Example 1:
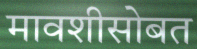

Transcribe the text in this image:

मावशीसोबत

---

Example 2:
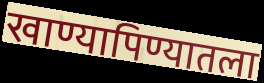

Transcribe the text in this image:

खाण्यापिण्यातला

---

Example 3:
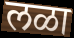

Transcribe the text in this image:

लळा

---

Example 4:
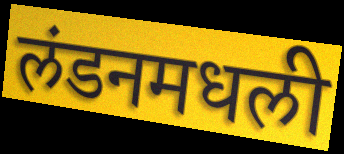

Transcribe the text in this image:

लंडनमधली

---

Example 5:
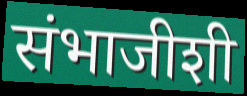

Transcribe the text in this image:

संभाजीशी